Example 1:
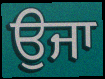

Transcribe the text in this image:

ਉਜਾ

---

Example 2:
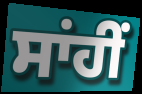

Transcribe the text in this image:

ਸਾਂਹੀਂ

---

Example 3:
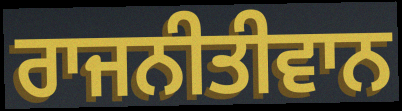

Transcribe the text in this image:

ਰਾਜਨੀਤੀਵਾਨ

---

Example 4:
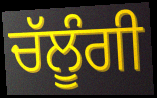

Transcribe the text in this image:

ਚੱਲੂੰਗੀ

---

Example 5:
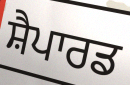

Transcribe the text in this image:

ਸ਼ੈਪਾਰਡ